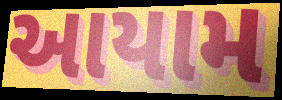
આયામ